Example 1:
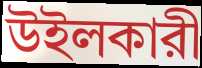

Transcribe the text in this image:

উইলকারী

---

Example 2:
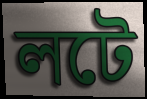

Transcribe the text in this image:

লটে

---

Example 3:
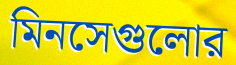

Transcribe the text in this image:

মিনসেগুলোর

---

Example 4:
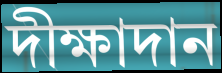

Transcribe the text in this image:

দীক্ষাদান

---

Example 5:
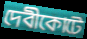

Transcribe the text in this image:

দেবীকোটে